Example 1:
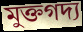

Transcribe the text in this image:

মুক্তগদ্য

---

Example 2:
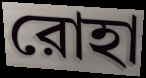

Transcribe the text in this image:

রোহা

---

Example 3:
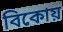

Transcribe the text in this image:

বিকোয়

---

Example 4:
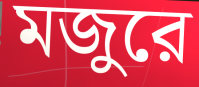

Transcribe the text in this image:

মজুরে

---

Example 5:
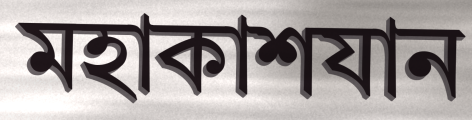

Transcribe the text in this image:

মহাকাশযান